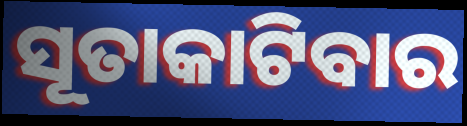
ସୂତାକାଟିବାର